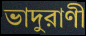
ভাদুরাণী